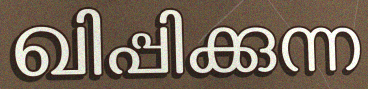
ഖിപ്പിക്കുന്ന